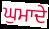
ਘੁਮਾਦੇ